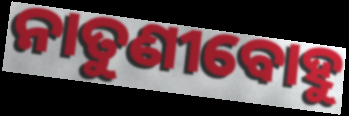
ନାତୁଣୀବୋହୁ